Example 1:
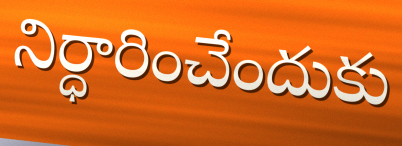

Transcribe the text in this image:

నిర్ధారించేందుకు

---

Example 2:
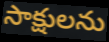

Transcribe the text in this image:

సాక్షులను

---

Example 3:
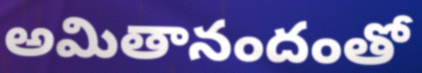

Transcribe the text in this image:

అమితానందంతో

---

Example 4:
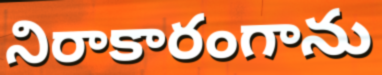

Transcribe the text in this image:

నిరాకారంగాను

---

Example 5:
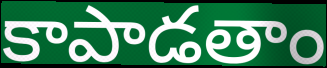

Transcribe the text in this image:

కాపాడతాం